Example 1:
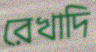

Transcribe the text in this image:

রেখাদি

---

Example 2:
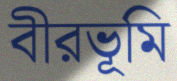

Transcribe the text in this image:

বীরভূমি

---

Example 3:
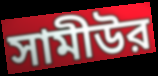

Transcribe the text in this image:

সামীউর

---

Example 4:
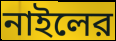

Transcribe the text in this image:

নাইলের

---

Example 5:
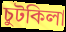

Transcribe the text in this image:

চুটকিলা